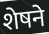
शेषने